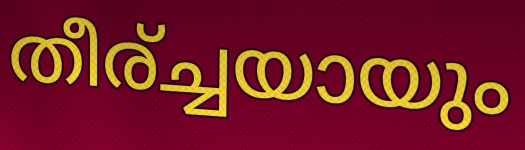
തീര്ച്ചയായും